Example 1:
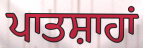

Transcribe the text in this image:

ਪਾਤਸ਼ਾਹਾਂ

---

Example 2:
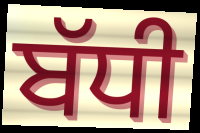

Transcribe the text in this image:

ਬੱਧੀ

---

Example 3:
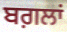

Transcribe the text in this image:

ਬਗ਼ਲਾਂ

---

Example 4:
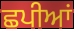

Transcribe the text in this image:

ਛਪੀਆਂ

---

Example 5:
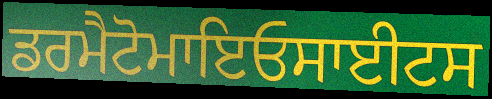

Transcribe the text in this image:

ਡਰਮੈਟੋਮਾਇਓਸਾਈਟਸ